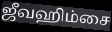
ஜீவஹிம்சை